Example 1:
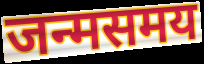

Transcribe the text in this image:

जन्मसमय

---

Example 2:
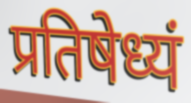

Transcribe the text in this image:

प्रतिषेध्यं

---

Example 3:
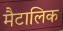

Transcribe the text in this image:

मैटालिक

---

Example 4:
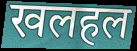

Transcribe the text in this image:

खलहल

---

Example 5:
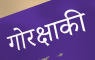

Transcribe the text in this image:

गोरक्षाकी